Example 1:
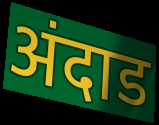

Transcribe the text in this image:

अंदाड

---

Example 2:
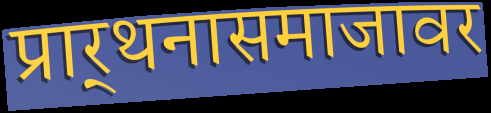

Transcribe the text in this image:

प्रार्थनासमाजावर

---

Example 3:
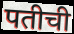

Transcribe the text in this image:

पतीची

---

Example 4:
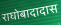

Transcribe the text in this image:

राघोबादादास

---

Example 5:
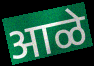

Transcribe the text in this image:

आळे